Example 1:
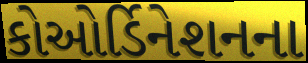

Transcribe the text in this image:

કોઓર્ડિનેશનના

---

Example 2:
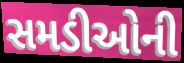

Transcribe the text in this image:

સમડીઓની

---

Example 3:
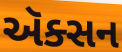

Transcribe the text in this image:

ઍક્સન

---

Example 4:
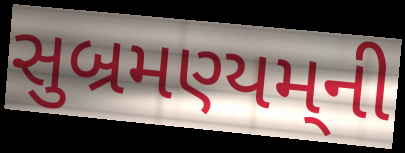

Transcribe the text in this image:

સુબ્રમણ્યમ્‌ની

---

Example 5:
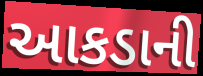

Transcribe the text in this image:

આકડાની